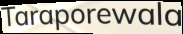
Taraporewala